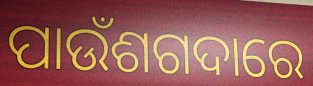
ପାଉଁଶଗଦାରେ